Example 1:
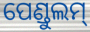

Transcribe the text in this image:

ପେଣ୍ଡୁଲମ୍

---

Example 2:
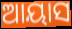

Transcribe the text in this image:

ଆୟାସ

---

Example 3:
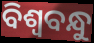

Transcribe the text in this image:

ବିଶ୍ୱବନ୍ଧୁ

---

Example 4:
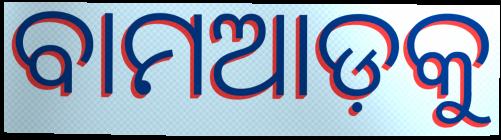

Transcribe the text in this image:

ବାମଆଡ଼କୁ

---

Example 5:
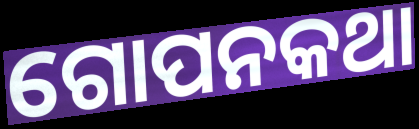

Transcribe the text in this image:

ଗୋପନକଥା